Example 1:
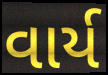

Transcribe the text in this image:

વાર્ય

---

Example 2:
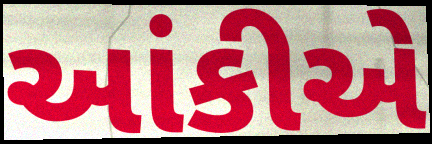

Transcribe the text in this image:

આંકીએ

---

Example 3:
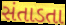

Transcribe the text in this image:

સંતાડતા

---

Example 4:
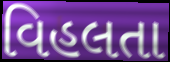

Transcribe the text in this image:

વિહલતા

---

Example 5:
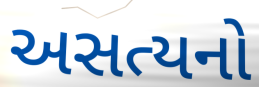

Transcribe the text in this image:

અસત્યનો